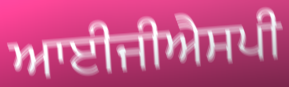
ਆਈਜੀਐਸਪੀ